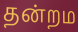
தன்றம